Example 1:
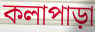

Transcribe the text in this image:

কলাপাড়া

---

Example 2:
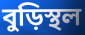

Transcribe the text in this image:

বুড়িস্থল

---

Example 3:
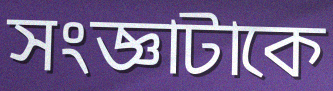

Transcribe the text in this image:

সংজ্ঞাটাকে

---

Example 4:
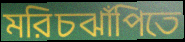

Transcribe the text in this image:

মরিচঝাঁপিতে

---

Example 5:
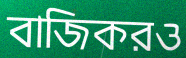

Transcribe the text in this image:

বাজিকরও